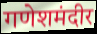
गणेशमंदीर